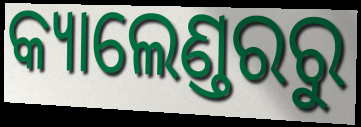
କ୍ୟାଲେଣ୍ଡରରୁ